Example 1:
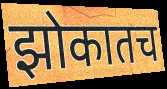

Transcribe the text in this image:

झोकातच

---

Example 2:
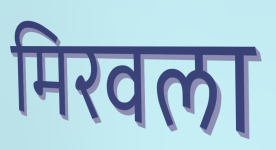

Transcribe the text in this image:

मिरवला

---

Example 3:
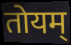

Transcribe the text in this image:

तोयम्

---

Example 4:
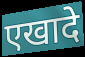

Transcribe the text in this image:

एखादे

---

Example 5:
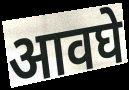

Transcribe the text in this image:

आवघे